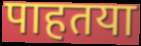
पाहतया